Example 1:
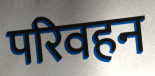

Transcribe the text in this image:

परिवहन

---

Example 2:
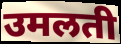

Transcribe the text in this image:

उमलती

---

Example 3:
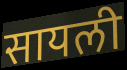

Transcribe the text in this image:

सायली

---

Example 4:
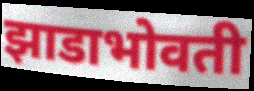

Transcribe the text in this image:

झाडाभोवती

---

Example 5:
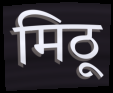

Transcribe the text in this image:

मिठू